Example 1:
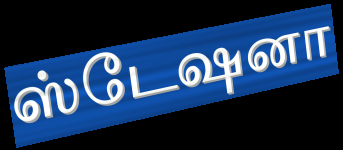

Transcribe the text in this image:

ஸ்டேஷனா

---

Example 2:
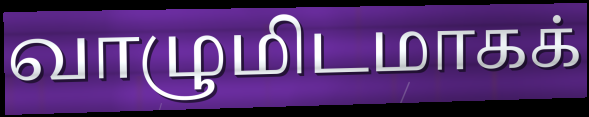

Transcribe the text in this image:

வாழுமிடமாகக்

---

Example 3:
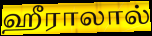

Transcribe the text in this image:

ஹீராலால்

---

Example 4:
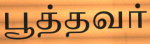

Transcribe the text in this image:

பூத்தவர்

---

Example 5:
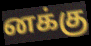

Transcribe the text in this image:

னக்கு